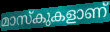
മാസ്കുകളാണ്